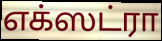
எக்ஸட்ரா